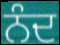
ਨੰਦ